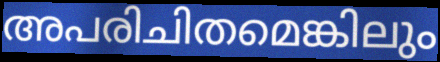
അപരിചിതമെങ്കിലും